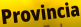
Provincia